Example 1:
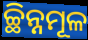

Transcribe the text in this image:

ଚ୍ଛିନ୍ନମୂଳ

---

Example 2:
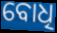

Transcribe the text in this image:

ବୋଧି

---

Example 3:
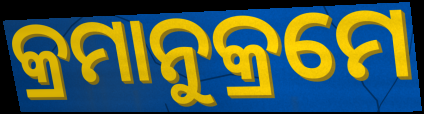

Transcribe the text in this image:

କ୍ରମାନୁକ୍ରମେ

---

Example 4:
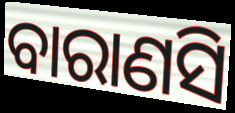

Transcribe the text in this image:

ବାରାଣସି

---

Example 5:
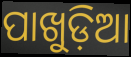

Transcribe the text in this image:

ପାଖୁଡ଼ିଆ